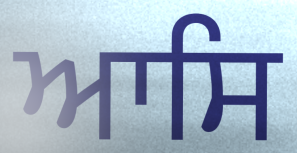
ਆਸਿ